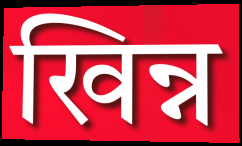
खिन्न